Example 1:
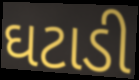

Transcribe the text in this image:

ઘટાડી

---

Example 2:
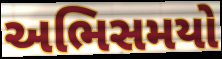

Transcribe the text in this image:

અભિસમયો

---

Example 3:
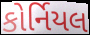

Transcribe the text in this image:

કોર્નિયલ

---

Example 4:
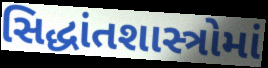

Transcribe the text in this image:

સિદ્ધાંતશાસ્ત્રોમાં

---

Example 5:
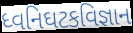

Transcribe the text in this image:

ધ્વનિઘટકવિજ્ઞાન